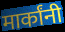
मार्कांनी